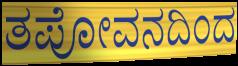
ತಪೋವನದಿಂದ